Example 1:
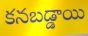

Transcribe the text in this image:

కనబడ్డాయి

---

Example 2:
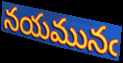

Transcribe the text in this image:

నయమునఁ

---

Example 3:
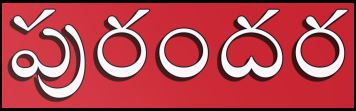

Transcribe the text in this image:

పురందర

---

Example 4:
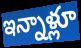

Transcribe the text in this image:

ఇన్నాళ్లూ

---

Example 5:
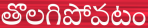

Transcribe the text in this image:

తొలగిపోవటం